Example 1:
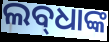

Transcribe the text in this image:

ଲବ୍‌ଧାଙ୍କ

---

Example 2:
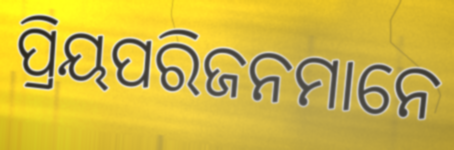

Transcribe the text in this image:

ପ୍ରିୟପରିଜନମାନେ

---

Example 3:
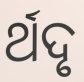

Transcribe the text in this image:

ର୍ଥଦୃ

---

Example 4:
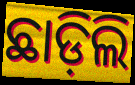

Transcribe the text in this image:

ଛାଡ଼ିଲି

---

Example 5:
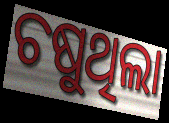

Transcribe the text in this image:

ଚଷୁଥିଲା